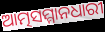
ଆତ୍ମସମ୍ମାନଧାରୀ